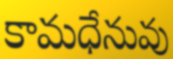
కామధేనువు